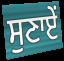
ਸੁਣਾਏਂ